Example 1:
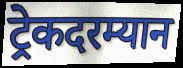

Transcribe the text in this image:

ट्रेकदरम्यान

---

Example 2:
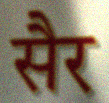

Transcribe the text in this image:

सैर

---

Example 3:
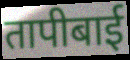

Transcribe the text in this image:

तापीबाई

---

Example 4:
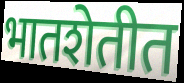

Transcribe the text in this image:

भातशेतीत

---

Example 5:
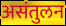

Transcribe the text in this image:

असंतुलन